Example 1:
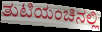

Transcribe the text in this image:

ತುಟಿಯಂಚಿನಲ್ಲಿ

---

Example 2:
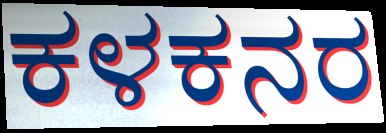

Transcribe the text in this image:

ಕಳಕನರ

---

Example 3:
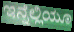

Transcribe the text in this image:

ಇನ್ನೆಲ್ಲಿಯೂ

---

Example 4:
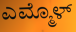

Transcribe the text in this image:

ಎಮ್ಮೊಳ್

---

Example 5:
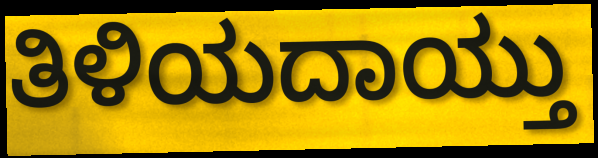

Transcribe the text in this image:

ತಿಳಿಯದಾಯ್ತು